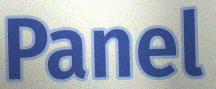
Panel